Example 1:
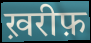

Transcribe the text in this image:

ख़रीफ़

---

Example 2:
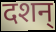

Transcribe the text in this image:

दशन्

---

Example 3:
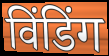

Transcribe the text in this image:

विंडिंग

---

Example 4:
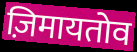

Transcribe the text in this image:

ज़िमायतोव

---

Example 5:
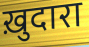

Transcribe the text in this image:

ख़ुदारा